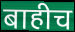
बाहीच